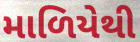
માળિયેથી